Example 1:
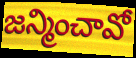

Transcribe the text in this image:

జన్మించావో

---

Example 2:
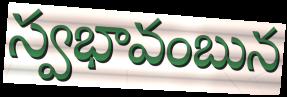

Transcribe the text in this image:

స్వభావంబున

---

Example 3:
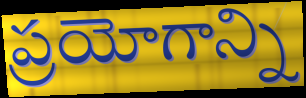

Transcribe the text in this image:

ప్రయోగాన్ని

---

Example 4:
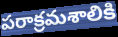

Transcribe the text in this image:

పరాక్రమశాలికి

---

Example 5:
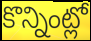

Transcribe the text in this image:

కొన్నింట్లో